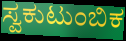
ಸ್ವಕುಟುಂಬಿಕ